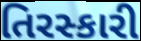
તિરસ્કારી